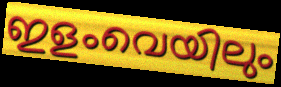
ഇളംവെയിലും